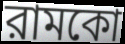
রামকো